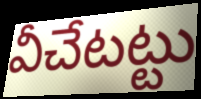
వీచేటట్టు